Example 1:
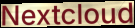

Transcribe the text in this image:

Nextcloud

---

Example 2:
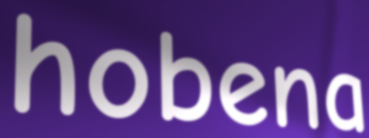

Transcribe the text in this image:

hobena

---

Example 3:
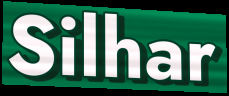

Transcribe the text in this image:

Silhar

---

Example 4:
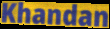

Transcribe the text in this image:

Khandan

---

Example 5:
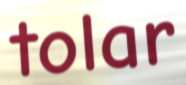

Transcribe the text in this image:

tolar